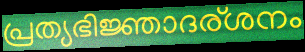
പ്രത്യഭിജ്ഞാദര്ശനം